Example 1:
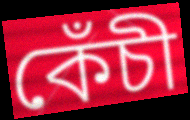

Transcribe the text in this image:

কেঁচী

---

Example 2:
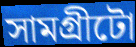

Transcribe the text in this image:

সামগ্ৰীটো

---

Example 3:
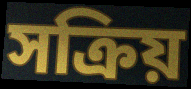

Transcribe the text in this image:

সক্ৰিয়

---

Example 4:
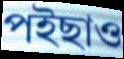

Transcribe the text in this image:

পইছাও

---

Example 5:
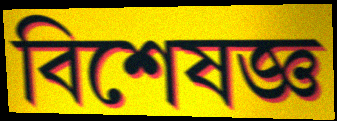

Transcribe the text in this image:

বিশেষজ্ঞ